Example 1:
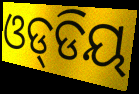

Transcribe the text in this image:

ଓଡ୍‌ଡିୟ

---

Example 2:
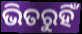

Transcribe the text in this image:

ଭିତରୁହିଁ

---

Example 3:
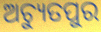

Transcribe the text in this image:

ଅଚ୍ୟୁତପୁର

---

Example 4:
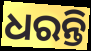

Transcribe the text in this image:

ଧରନ୍ତି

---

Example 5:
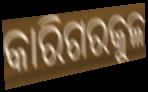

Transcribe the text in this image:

କାରିଗରକୁଳ